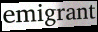
emigrant